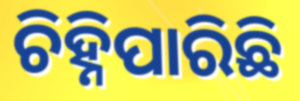
ଚିହ୍ନିପାରିଛି